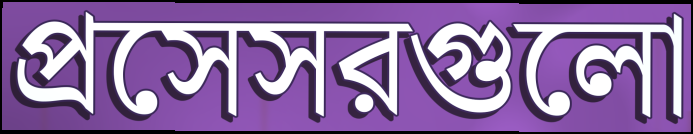
প্রসেসরগুলো